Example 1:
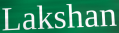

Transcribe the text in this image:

Lakshan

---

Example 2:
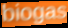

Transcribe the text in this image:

biogas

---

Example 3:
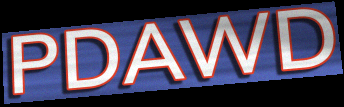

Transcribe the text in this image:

PDAWD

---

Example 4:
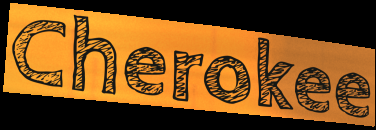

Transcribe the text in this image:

Cherokee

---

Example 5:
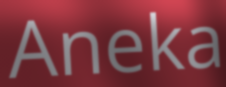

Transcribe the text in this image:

Aneka